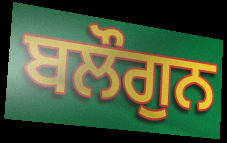
ਬਲੌਗੁਨ